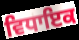
ਵਿਧਾਇਕ